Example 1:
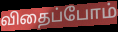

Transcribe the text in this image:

விதைப்போம்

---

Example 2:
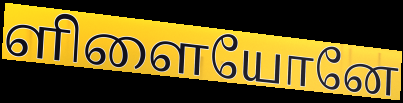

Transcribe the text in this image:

ளிளையோனே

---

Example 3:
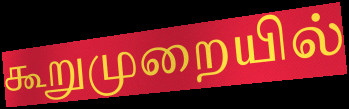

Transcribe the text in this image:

கூறுமுறையில்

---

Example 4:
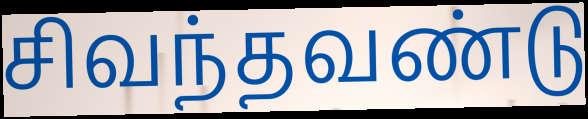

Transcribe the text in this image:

சிவந்தவண்டு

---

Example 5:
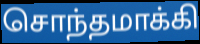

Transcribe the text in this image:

சொந்தமாக்கி